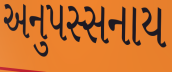
અનુપસ્સનાય